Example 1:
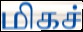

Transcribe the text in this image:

மிகச்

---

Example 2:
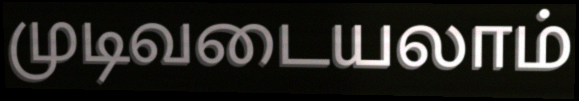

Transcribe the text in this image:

முடிவடையலாம்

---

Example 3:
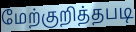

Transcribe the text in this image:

மேற்குறித்தபடி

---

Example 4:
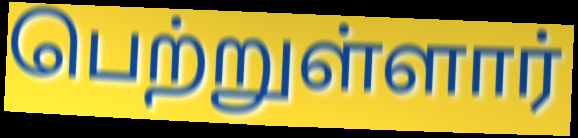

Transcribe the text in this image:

பெற்றுள்ளார்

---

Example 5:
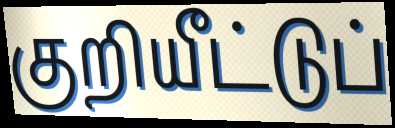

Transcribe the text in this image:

குறியீட்டுப்